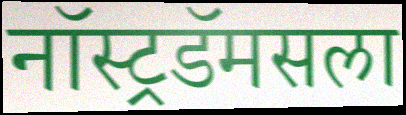
नॉस्ट्रडॅमसला